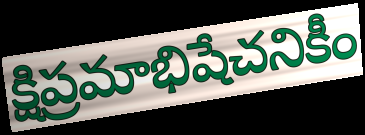
క్షిప్రమాభిషేచనికీం